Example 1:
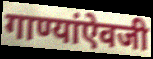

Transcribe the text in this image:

गाण्यांऐवजी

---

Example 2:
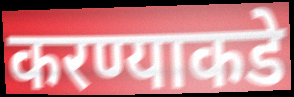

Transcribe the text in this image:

करण्याकडे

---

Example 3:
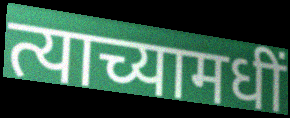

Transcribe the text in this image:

त्याच्यामधीं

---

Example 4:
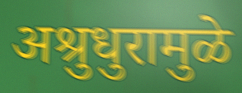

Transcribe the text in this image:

अश्रुधुरामुळे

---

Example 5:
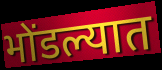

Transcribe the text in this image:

भोंडल्यात